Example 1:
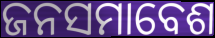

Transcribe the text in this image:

ଜନସମାବେଶ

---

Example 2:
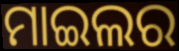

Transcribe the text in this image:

ମାଇଲର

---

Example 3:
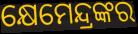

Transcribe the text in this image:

କ୍ଷେମେନ୍ଦ୍ରଙ୍କର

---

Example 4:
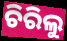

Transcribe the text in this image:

ଚିରିଲୁ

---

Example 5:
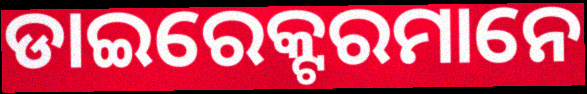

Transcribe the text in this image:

ଡାଇରେକ୍ଟରମାନେ